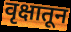
वृक्षातून